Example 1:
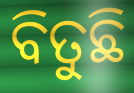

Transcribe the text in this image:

ବିତୁଛି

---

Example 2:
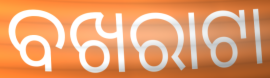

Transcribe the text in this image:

ବଖରାଟା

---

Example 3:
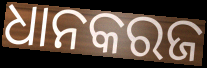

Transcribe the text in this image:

ଧାନକରଜ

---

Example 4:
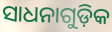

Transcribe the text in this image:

ସାଧନାଗୁଡ଼ିକ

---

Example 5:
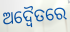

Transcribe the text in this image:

ଅଦ୍ୱୈତରେ